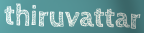
thiruvattar